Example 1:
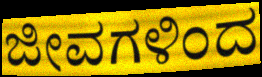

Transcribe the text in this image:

ಜೀವಗಳಿಂದ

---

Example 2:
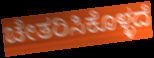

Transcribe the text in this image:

ಚೇತರಿಸಿಕೊಳ್ಳದೆ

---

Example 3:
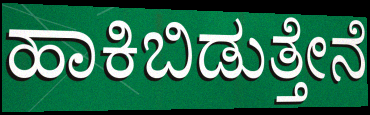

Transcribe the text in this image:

ಹಾಕಿಬಿಡುತ್ತೇನೆ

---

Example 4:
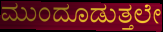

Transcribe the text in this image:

ಮುಂದೂಡುತ್ತಲೇ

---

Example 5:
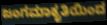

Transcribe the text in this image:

ಜಂಗಮಾಕೃತಿಯಿಂದ